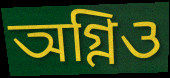
অগ্নিও